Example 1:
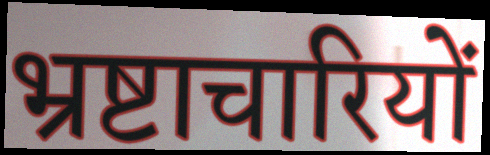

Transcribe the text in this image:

भ्रष्टाचारियों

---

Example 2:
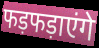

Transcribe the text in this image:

फड़फड़ाएंगे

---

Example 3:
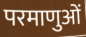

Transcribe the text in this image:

परमाणुओं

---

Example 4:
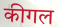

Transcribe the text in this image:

कीगल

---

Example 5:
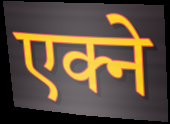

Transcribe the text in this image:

एक्ने